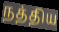
நத்திய